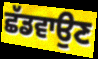
ਛੱਡਵਾਉਣ